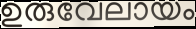
ഉരുവേലായം